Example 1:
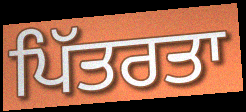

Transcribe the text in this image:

ਪਿੱਤਰਤਾ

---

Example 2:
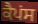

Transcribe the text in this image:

ਕੈਪਂਸ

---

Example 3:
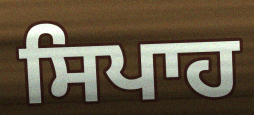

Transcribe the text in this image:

ਸਿਪਾਹ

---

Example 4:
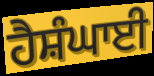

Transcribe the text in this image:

ਹੈਸ਼ੰਘਾਈ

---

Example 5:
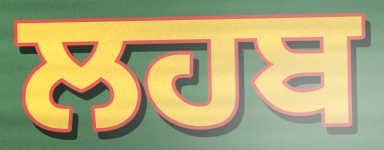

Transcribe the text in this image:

ਲਹਬ